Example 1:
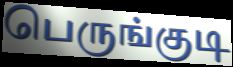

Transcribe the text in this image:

பெருங்குடி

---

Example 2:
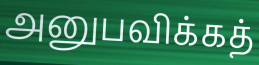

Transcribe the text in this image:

அனுபவிக்கத்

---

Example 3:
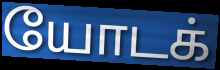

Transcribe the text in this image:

யோடக்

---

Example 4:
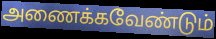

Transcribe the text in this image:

அணைக்கவேண்டும்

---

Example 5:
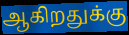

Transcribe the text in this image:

ஆகிறதுக்கு